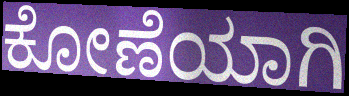
ಕೋಣೆಯಾಗಿ